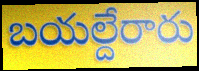
బయల్దేరారు